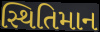
સ્થિતિમાન